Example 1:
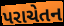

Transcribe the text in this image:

પરાચેતન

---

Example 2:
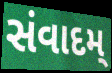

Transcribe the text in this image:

સંવાદમ્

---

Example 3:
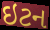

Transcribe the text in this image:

ઇટન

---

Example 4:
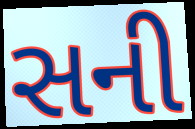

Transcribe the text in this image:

સની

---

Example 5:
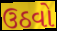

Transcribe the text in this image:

ઉઠવો